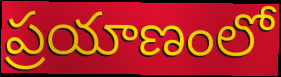
ప్రయాణంలో